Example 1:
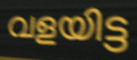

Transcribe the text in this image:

വളയിട്ട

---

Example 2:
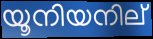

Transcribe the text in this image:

യൂനിയനില്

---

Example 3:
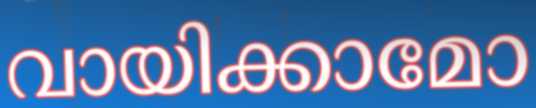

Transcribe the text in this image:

വായിക്കാമോ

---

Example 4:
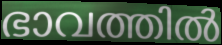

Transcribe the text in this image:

ഭാവത്തിൽ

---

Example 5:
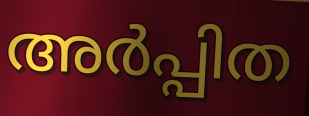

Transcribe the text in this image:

അർപ്പിത